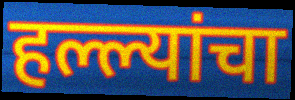
हल्ल्यांचा